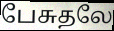
பேசுதலே